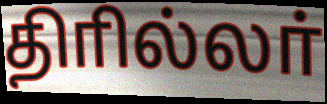
திரில்லர்